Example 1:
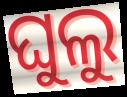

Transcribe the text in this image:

ଘୁଲୁ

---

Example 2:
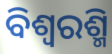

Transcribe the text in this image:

ବିଶ୍ୱରଶ୍ମି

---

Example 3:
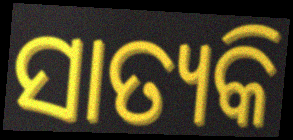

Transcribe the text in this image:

ସାତ୍ୟକି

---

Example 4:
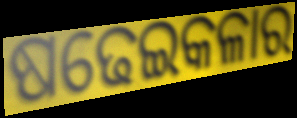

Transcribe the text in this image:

ଷଢେଇକଳାର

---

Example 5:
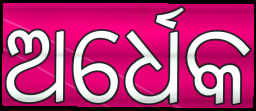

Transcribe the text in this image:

ଅର୍ଧେକ